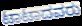
ಟಾಟಾದವರು